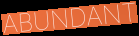
ABUNDANT